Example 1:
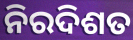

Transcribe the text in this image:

ନିରଦିଶତ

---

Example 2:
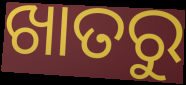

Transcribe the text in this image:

ଖାତରୁ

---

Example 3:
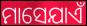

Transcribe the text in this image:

ମାସେଯାଏଁ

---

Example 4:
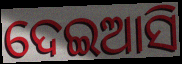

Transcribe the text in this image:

ଦେଇଆସି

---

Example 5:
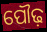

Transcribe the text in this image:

ପୌଢ଼